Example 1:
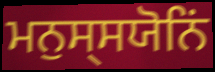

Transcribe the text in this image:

ਮਨੁਸ੍ਸਯੋਨਿਂ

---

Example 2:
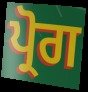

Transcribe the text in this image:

ਪ੍ਰੋਗ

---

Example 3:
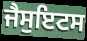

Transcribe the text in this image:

ਜੈਸੁਇਟਸ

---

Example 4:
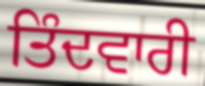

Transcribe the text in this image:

ਤਿੰਦਵਾਰੀ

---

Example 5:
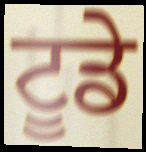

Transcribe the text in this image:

ਟੂਡੇ